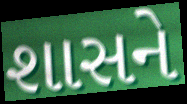
શાસને